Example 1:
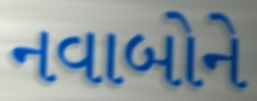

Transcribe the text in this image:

નવાબોને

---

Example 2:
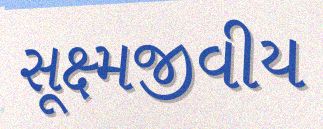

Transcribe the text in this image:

સૂક્ષ્મજીવીય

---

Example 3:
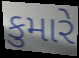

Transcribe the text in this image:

કુમારે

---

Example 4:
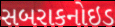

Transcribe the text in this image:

સબરાકનોઇડ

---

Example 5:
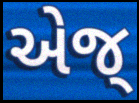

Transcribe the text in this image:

એજ્